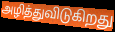
அழித்துவிடுகிறது